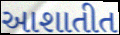
આશાતીત